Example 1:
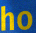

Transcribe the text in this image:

ho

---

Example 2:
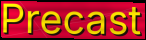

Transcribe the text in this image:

Precast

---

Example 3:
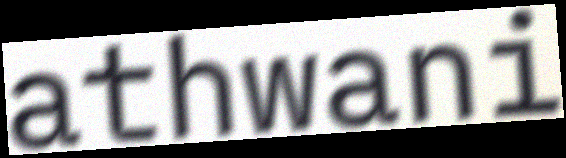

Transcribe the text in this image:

athwani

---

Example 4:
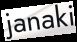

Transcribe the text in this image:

janaki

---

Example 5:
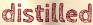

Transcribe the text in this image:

distilled